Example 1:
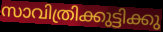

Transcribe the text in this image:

സാവിത്രിക്കുട്ടിക്കു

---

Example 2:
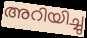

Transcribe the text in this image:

അറിയിച്ചു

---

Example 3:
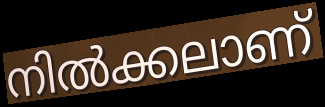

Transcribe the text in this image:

നിൽക്കലാണ്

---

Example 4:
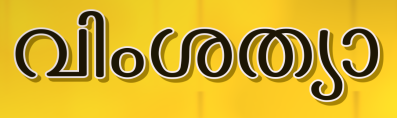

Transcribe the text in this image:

വിംശത്യാ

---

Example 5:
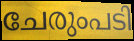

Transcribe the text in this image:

ചേരുംപടി